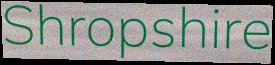
Shropshire